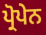
ਪ੍ਰੋਪੇਨ